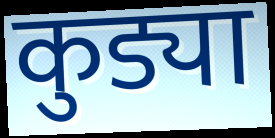
कुड्या